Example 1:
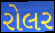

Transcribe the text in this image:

રોલર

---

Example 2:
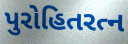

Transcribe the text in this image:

પુરોહિતરત્ન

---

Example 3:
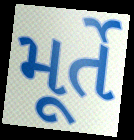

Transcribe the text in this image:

મૂર્તે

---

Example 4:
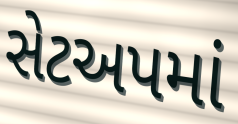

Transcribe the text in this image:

સેટઅપમાં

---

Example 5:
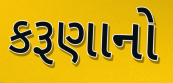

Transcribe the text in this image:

કરૂણાનો